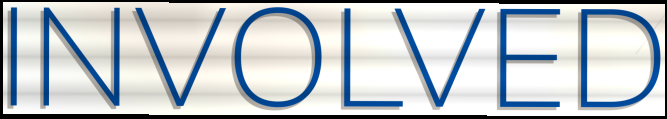
INVOLVED